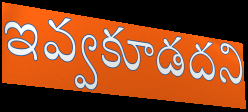
ఇవ్వకూడదని